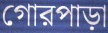
গোরপাড়া